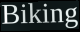
Biking